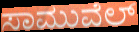
ಸಾಮುವೆಲ್